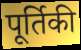
पूर्तिकी